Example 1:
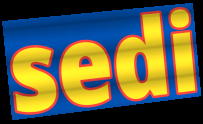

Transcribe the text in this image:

sedi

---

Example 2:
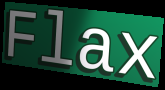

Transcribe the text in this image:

Flax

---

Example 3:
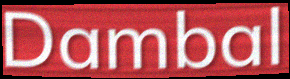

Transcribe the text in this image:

Dambal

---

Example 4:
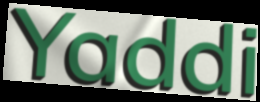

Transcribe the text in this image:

Yaddi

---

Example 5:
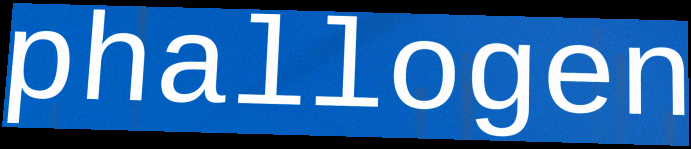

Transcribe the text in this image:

phallogen